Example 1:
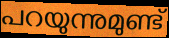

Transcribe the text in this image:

പറയുന്നുമുണ്ട്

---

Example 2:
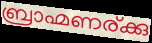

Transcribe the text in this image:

ബ്രാഹ്മണര്ക്കു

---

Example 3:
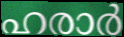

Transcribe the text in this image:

ഹരാർ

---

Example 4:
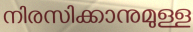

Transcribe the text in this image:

നിരസിക്കാനുമുള്ള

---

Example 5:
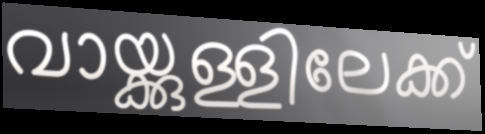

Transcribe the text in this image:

വായ്ക്കുള്ളിലേക്ക്